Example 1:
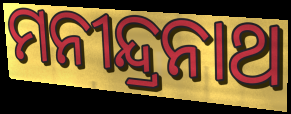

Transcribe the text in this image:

ମନୀନ୍ଦ୍ରନାଥ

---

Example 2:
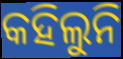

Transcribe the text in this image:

କହିଲୁନି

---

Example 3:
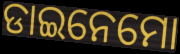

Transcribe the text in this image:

ଡାଇନେମୋ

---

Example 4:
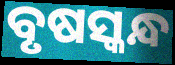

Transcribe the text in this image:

ବୃଷସ୍କନ୍ଧ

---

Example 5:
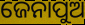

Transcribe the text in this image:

ଜେନାପୁଅ